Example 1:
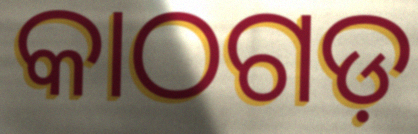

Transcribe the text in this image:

କାଠଗଡ଼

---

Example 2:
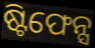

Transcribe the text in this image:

ଷ୍ଟିଫେନ୍ସ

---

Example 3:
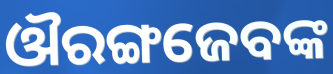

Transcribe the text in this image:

ଔରଙ୍ଗଜେବଙ୍କ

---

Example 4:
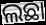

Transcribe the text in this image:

ଲଛା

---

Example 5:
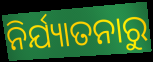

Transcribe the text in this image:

ନିର୍ଯ୍ୟାତନାରୁ